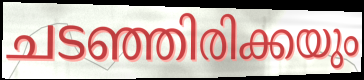
ചടഞ്ഞിരിക്കയും